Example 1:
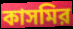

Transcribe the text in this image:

কাসমির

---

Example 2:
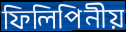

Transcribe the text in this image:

ফিলিপিনীয়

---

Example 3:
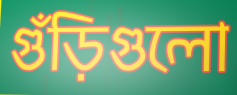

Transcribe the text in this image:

গুঁড়িগুলো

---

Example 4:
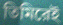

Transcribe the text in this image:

তিমিরেই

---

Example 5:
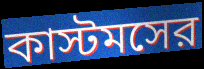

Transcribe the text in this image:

কাস্টমসের